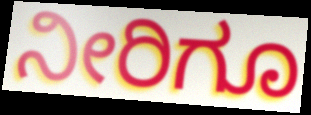
ನೀರಿಗೂ